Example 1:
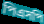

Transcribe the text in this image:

পিএসপি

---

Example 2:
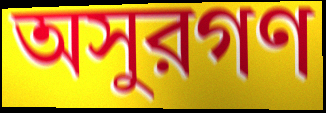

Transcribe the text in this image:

অসুরগণ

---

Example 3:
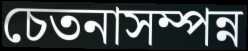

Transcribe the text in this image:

চেতনাসম্পন্ন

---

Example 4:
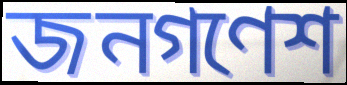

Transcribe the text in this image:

জনগণেশ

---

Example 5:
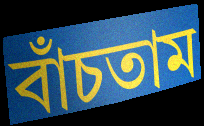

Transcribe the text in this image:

বাঁচতাম